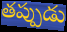
తప్పుడు